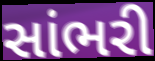
સાંભરી